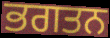
ਭਗਤਨ